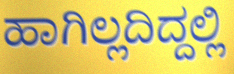
ಹಾಗಿಲ್ಲದಿದ್ದಲ್ಲಿ